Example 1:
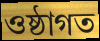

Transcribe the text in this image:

ওষ্ঠাগত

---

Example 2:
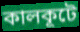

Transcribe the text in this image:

কালকূটে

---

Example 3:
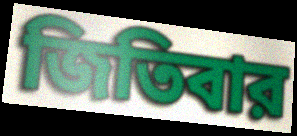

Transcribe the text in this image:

জিতিবার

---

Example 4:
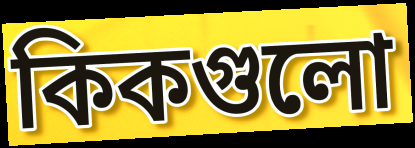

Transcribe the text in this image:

কিকগুলো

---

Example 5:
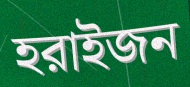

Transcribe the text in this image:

হরাইজন